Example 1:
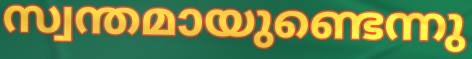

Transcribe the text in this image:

സ്വന്തമായുണ്ടെന്നു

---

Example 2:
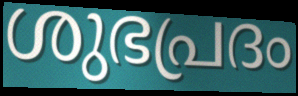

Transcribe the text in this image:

ശുഭപ്രദം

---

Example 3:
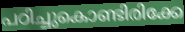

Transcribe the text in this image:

പഠിച്ചുകൊണ്ടിരിക്കേ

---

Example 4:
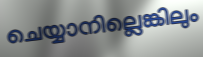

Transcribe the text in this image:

ചെയ്യാനില്ലെങ്കിലും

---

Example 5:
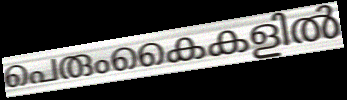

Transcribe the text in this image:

പെരുംകൈകളിൽ